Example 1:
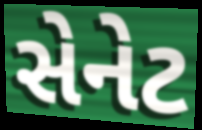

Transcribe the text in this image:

સેનેટ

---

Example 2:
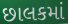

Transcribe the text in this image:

છાલકમાં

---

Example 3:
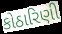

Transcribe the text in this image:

કોઠારિણી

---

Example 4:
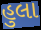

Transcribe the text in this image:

હુલા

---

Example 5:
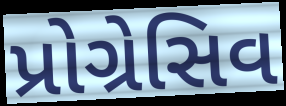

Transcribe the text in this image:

પ્રોગ્રેસિવ